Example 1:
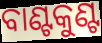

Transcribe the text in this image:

ବାଣ୍ଟକୁଣ୍ଟ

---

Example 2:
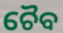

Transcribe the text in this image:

ଚୈବ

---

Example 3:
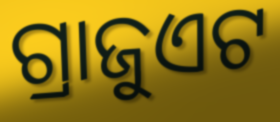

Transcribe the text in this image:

ଗ୍ରାଜୁଏଟ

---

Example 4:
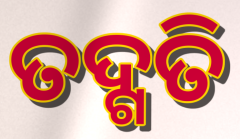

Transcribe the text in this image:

ତଦ୍ଗତି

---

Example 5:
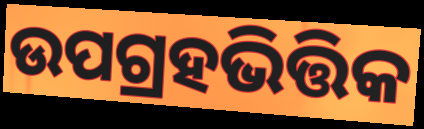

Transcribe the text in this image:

ଉପଗ୍ରହଭିତ୍ତିକ